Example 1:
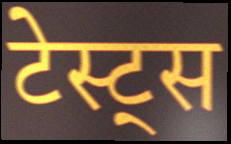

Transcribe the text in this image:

टेस्ट्स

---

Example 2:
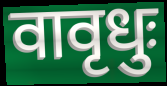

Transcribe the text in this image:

वावृधुः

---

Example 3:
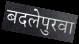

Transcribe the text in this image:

बदलेपुरवा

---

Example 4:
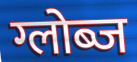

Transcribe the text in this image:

ग्लोब्ज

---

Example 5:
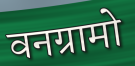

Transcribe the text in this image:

वनग्रामो